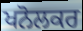
ਖਨੋਲਕਰ